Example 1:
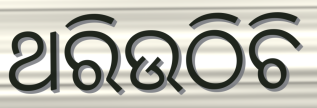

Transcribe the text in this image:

ଥରିଉଠିଚି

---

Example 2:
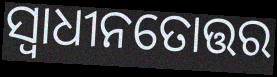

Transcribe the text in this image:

ସ୍ୱାଧୀନତୋତ୍ତର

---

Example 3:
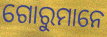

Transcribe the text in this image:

ଗୋରୁମାନେ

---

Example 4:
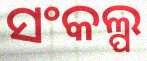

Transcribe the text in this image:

ସଂକଲ୍ପ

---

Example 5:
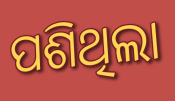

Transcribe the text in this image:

ପଶିଥିଲା